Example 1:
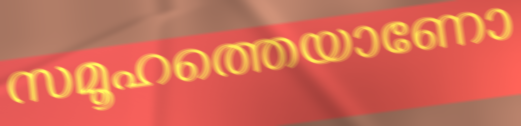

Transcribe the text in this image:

സമൂഹത്തെയാണോ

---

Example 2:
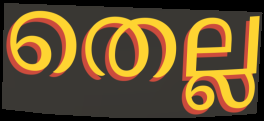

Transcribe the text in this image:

തെല്ല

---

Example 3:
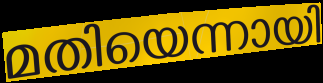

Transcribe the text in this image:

മതിയെന്നായി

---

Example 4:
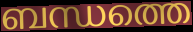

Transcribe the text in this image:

ബന്ധത്തെ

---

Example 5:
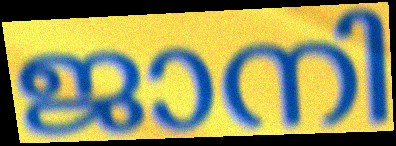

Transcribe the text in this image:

ജാനി